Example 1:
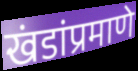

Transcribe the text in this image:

खंडांप्रमाणे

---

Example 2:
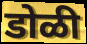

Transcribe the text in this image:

डोळी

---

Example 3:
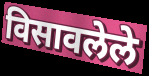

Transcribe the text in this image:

विसावलेले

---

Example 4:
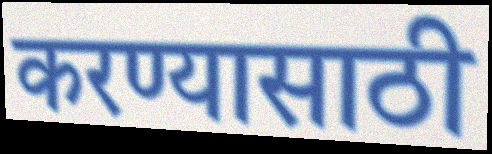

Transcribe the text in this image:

करण्‍यासाठी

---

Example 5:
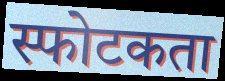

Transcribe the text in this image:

स्फोटकता